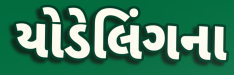
યોડેલિંગના